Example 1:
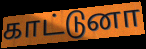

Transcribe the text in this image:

காட்டுனா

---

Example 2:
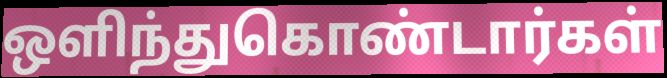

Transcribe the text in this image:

ஒளிந்துகொண்டார்கள்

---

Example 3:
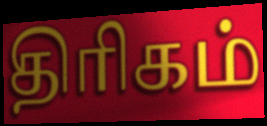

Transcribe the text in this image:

திரிகம்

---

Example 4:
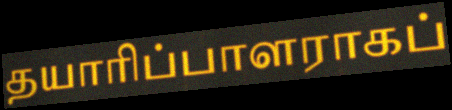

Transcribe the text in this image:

தயாரிப்பாளராகப்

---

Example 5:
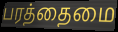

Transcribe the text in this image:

பரத்தைமை